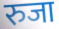
रुजा